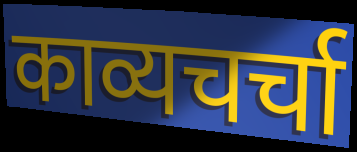
काव्यचर्चा